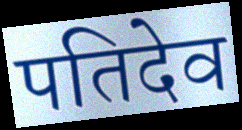
पतिदेव